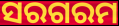
ସରଗରମ